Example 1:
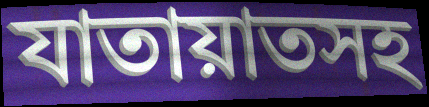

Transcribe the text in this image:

যাতায়াতসহ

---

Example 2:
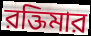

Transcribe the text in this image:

রক্তিমার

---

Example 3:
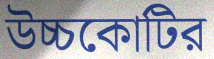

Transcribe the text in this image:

উচ্চকোটির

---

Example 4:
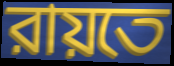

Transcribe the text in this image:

রায়তে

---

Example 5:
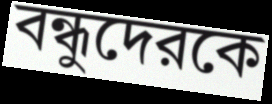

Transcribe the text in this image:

বন্ধুদেরকে